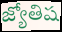
జ్యోతిష